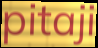
pitaji